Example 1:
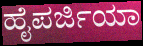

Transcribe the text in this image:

ಹೈಪರ್ಜಿಯಾ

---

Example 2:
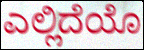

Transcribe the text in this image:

ಎಲ್ಲಿದೆಯೊ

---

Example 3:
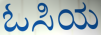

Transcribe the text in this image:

ಓಸಿಯ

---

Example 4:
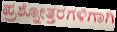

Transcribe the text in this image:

ಪ್ರಶ್ನೋತ್ತರಗಳಿಗಾಗಿ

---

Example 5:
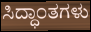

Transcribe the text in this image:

ಸಿದ್ಧಾಂತಗಳು